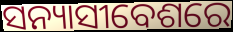
ସନ୍ୟାସୀବେଶରେ